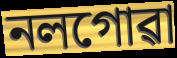
নলগোৱা